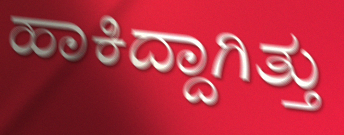
ಹಾಕಿದ್ದಾಗಿತ್ತು